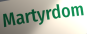
Martyrdom